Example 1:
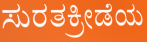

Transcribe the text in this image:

ಸುರತಕ್ರೀಡೆಯ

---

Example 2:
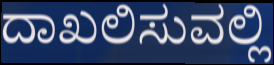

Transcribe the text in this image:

ದಾಖಲಿಸುವಲ್ಲಿ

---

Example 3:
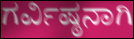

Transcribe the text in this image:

ಗರ್ವಿಷ್ಠನಾಗಿ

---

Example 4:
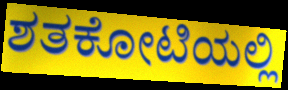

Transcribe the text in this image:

ಶತಕೋಟಿಯಲ್ಲಿ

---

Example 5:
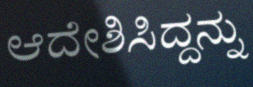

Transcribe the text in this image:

ಆದೇಶಿಸಿದ್ದನ್ನು